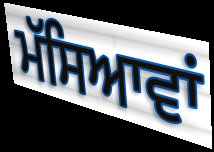
ਮੱਸਿਆਵਾਂ